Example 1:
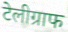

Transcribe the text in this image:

टेलीग्राफ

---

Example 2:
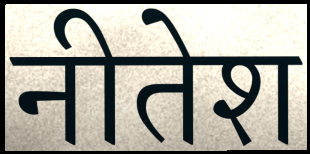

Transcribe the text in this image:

नीतेश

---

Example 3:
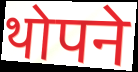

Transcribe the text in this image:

थोपने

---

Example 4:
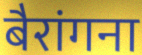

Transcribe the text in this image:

बैरांगना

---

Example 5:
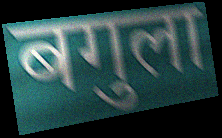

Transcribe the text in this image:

बगुला